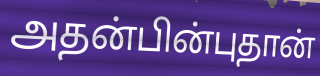
அதன்பின்புதான்